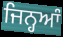
ਜਿਨ੍ਹਆੰ